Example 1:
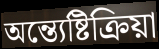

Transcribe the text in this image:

অন্ত্যেষ্টিক্ৰিয়া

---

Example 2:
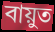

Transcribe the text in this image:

বায়ুত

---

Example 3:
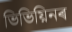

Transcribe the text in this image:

ভিভিয়িনৰ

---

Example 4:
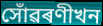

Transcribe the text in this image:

সোঁৱৰণীখন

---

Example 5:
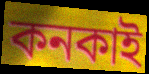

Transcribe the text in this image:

কনকাই